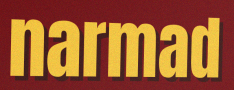
narmad